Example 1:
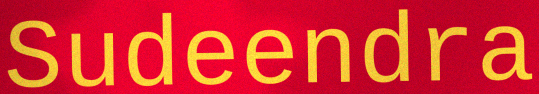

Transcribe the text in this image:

Sudeendra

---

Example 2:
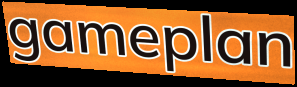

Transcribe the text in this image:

gameplan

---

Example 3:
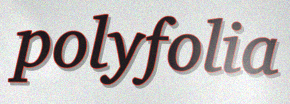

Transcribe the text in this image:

polyfolia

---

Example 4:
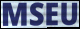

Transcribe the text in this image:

MSEU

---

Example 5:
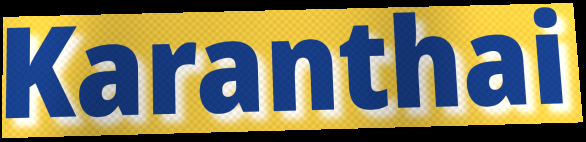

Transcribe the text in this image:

Karanthai